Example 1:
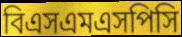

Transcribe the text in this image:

বিএসএমএসপিসি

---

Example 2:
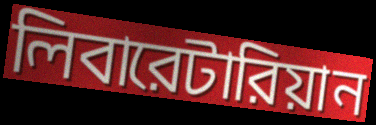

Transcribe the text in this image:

লিবারেটারিয়ান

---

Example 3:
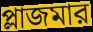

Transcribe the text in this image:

প্লাজমার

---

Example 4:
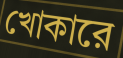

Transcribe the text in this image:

খোকারে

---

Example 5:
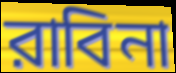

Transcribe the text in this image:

রাবিনা